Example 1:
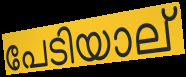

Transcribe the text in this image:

പേടിയാല്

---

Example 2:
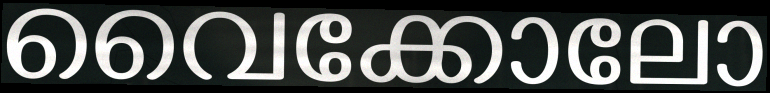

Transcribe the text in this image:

വൈക്കോലോ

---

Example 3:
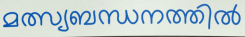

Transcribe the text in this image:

മത്സ്യബന്ധനത്തിൽ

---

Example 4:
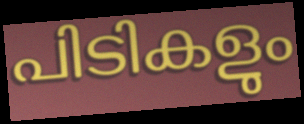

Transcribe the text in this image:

പിടികളും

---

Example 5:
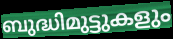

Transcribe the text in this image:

ബുദ്ധിമുട്ടുകളും